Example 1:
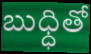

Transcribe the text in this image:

బుధ్ధితో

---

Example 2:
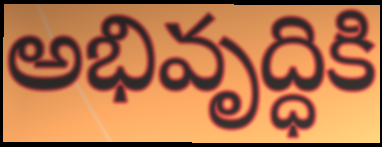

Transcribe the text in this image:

అభివృద్ధికి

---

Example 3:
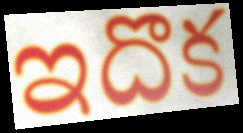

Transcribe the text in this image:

ఇదొక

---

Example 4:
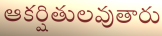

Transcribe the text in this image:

ఆకర్షితులవుతారు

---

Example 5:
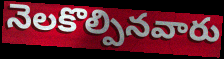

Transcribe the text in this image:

నెలకొల్పినవారు